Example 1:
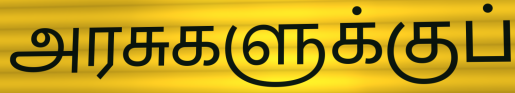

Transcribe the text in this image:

அரசுகளுக்குப்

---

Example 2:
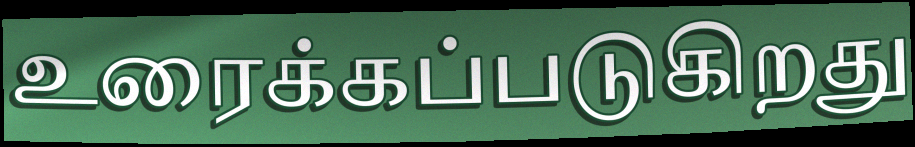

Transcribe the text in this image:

உரைக்கப்படுகிறது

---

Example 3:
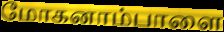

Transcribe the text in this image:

மோகனாம்பாளை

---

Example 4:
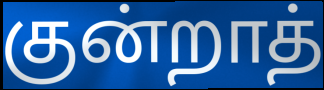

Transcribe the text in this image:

குன்றாத்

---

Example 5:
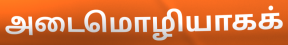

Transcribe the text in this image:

அடைமொழியாகக்